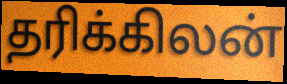
தரிக்கிலன்